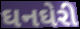
ઘનઘેરી